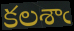
కలశాఁ